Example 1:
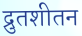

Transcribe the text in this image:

द्रुतशीतन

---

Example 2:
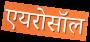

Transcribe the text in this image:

एयरोसॉल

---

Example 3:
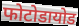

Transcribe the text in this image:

फोटोडायोड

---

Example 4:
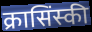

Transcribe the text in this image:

क्रासिंस्की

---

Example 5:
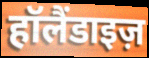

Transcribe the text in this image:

हॉलैंडाइज़